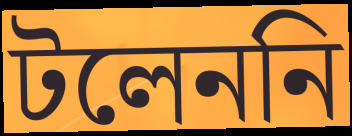
টলেননি